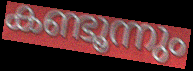
കണ്ടൂന്നും